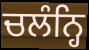
ਚਲੰਨ੍ਹ੍ਹਿ